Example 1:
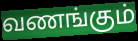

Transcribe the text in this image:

வணங்கும்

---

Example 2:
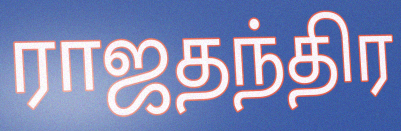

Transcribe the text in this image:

ராஜதந்திர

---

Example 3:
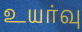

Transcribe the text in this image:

உயர்வு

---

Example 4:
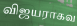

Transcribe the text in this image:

விஜயராகவ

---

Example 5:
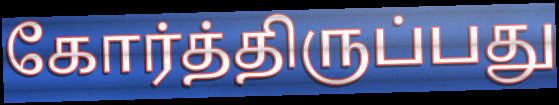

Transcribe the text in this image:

கோர்த்திருப்பது